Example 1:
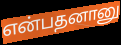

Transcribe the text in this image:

என்பதனானு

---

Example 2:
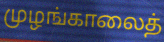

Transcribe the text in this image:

முழங்காலைத்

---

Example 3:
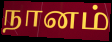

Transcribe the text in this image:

நானம்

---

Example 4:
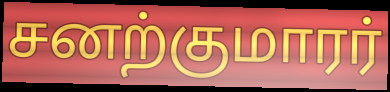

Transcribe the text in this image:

சனற்குமாரர்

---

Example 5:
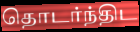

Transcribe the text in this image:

தொடர்ந்திட